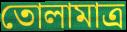
তোলামাত্র